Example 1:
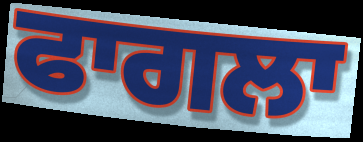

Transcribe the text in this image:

ਫਾਗਲਾ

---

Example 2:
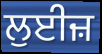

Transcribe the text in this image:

ਲੁਈਜ਼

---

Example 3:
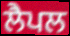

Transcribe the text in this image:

ਲੈਪਲ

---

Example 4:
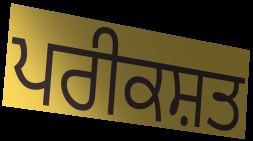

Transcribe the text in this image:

ਪਰੀਕਸ਼ਤ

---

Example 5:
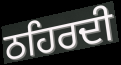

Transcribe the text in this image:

ਠਹਿਰਦੀ